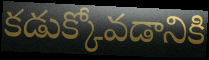
కడుక్కోవడానికి